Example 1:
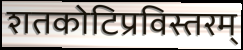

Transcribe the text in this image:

शतकोटिप्रविस्तरम्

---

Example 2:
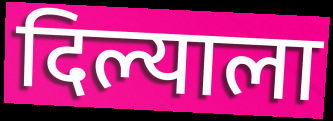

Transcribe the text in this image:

दिल्याला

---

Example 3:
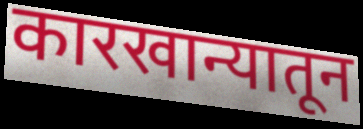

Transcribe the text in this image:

कारखान्यातून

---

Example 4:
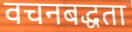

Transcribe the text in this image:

वचनबद्धता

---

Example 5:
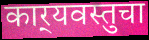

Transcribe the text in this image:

कार्यवस्तुचा